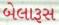
બેલારૂસ